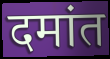
दमांत